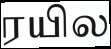
ரயில